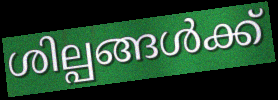
ശില്പങ്ങൾക്ക്